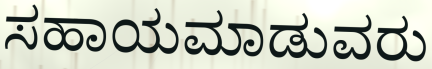
ಸಹಾಯಮಾಡುವರು